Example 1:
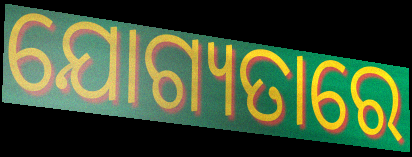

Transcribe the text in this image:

ଯୋଗ୍ୟତାରେ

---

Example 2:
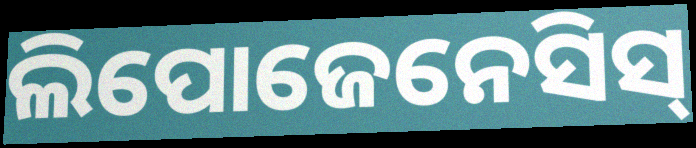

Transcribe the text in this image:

ଲିପୋଜେନେସିସ୍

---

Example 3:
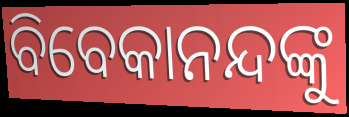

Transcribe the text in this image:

ବିବେକାନନ୍ଦଙ୍କୁ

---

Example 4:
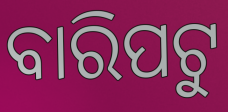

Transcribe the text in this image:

ବାରିପଟୁ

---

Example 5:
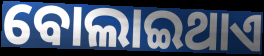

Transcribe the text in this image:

ବୋଲାଇଥାଏ